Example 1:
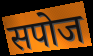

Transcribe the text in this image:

सपोज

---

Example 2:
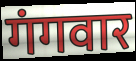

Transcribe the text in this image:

गंगवार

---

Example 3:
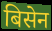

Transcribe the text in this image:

बिसेन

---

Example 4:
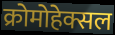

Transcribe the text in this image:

क्रोमोहेक्सल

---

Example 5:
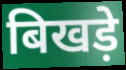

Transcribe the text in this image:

बिखड़े